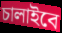
চালাইবে